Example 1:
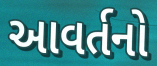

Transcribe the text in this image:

આવર્તનો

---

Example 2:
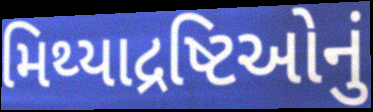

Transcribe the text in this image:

મિથ્યાદ્રષ્ટિઓનું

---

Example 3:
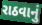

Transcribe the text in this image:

રાઠવાનું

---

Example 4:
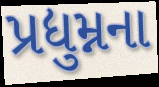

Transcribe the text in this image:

પ્રદ્યુમ્નના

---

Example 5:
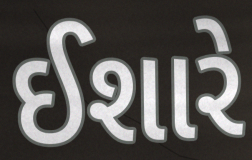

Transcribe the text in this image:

ઈશારે